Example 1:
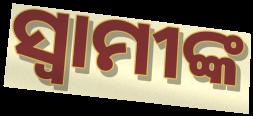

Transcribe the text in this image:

ସ୍ଵାମୀଙ୍କ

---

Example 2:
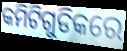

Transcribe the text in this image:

କମିଟିଗୁଡିକରେ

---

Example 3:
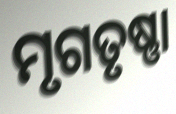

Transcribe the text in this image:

ମୃଗତୃଷ୍ଣା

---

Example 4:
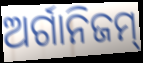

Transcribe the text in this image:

ଅର୍ଗାନିଜମ୍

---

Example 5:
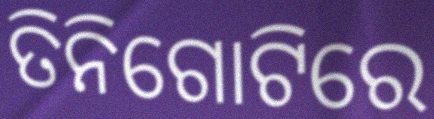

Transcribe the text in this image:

ତିନିଗୋଟିରେ